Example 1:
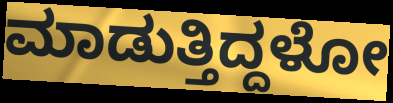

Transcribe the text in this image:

ಮಾಡುತ್ತಿದ್ದಳೋ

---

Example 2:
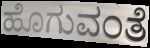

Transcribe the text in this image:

ಹೊಗುವಂತೆ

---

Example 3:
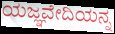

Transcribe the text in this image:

ಯಜ್ಞವೇದಿಯನ್ನ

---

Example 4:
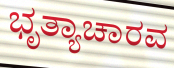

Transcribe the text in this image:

ಭೃತ್ಯಾಚಾರವ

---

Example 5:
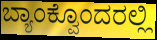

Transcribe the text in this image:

ಬ್ಯಾಂಕ್ವೊಂದರಲ್ಲಿ